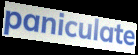
paniculate